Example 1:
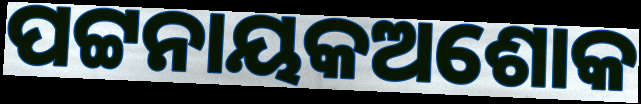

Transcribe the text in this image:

ପଟ୍ଟନାୟକଅଶୋକ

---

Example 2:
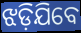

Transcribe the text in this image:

ଝଡ଼ିଯିବେ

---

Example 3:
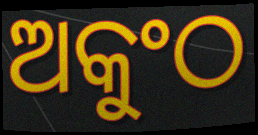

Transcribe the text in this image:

ଅକୁଂଠ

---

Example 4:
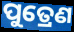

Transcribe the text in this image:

ପୁତ୍ରେଣ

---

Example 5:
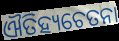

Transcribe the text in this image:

ଐତିହ୍ୟଚେତନା